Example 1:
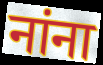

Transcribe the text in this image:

नांना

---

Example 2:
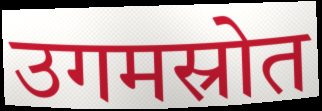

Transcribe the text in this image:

उगमस्रोत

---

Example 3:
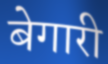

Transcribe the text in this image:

बेगारी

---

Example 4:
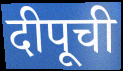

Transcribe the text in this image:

दीपूची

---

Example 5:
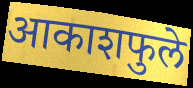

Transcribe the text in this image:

आकाशफुले